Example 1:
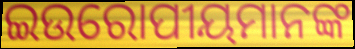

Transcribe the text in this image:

ଇଉରୋପୀୟମାନଙ୍କ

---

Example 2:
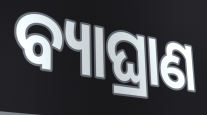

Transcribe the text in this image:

ବ୍ୟାଘ୍ରାଣ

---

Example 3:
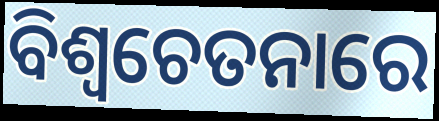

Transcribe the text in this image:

ବିଶ୍ୱଚେତନାରେ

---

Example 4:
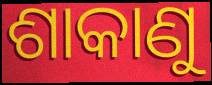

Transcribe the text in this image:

ଶାକାଣୁ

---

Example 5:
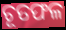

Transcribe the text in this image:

ଚୂତଫଳ